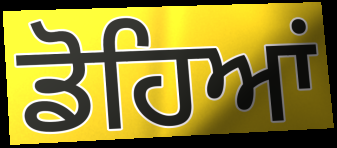
ਡੋਹਿਆਂ